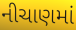
નીચાણમાં